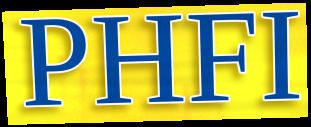
PHFI